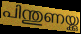
പിന്തുണയ്ക്കു